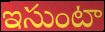
ఇసుంటా